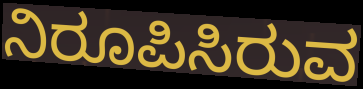
ನಿರೂಪಿಸಿರುವ